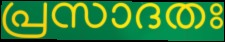
പ്രസാദതഃ